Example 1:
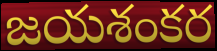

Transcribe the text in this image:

జయశంకర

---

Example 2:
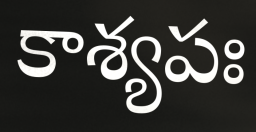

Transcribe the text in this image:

కాశ్యపః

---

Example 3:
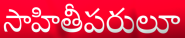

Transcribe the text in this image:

సాహితీపరులూ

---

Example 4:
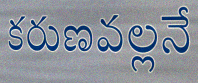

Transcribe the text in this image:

కరుణవల్లనే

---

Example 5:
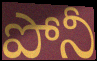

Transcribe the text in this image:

పోనీ